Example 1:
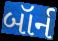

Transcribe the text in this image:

બૉર્ન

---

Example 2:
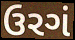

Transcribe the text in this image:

ઉરગં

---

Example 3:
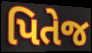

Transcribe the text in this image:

પિતેજ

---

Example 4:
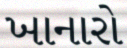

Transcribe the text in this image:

ખાનારો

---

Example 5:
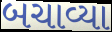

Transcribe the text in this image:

બચાવ્યા